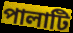
পালাটি